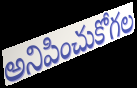
అనిపించుకోగల